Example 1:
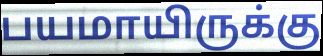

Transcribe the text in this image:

பயமாயிருக்கு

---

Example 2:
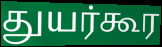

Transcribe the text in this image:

துயர்கூர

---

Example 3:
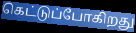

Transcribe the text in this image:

கெட்டுப்போகிறது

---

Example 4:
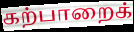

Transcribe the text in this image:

கற்பாறைக்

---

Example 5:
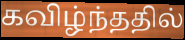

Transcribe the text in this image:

கவிழ்ந்ததில்